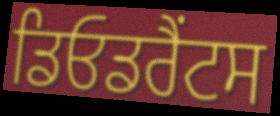
ਡਿਓਡਰੈਂਟਸ